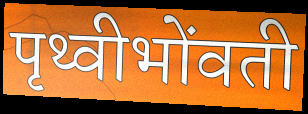
पृथ्वीभोंवती